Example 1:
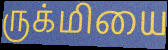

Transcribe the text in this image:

ருக்மியை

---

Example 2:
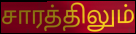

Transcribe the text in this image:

சாரத்திலும்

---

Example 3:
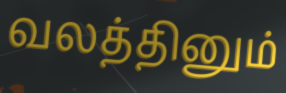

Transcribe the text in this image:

வலத்தினும்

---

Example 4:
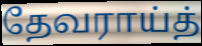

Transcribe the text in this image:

தேவராய்த்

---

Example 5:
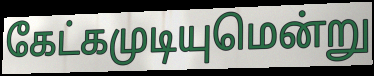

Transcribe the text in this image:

கேட்கமுடியுமென்று